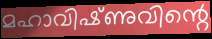
മഹാവിഷ്‌ണുവിന്റെ